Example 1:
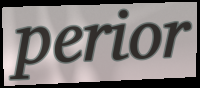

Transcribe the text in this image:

perior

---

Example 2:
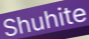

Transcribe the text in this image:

Shuhite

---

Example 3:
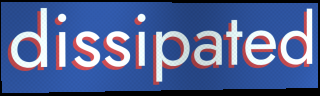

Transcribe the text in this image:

dissipated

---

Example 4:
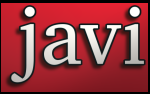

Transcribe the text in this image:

javi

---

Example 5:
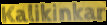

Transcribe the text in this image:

Kalikinkar